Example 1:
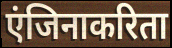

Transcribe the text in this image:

एंजिनाकरिता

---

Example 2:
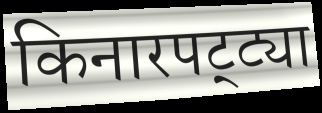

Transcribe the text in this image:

किनारपट्ट्या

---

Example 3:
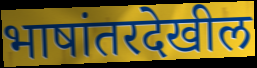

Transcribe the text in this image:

भाषांतरदेखील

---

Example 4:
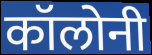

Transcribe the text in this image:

कॉलोनी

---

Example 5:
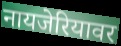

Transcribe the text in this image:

नायजेरियावर